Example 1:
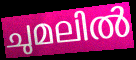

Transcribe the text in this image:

ചുമലിൽ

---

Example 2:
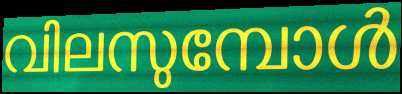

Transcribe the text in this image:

വിലസുമ്പോൾ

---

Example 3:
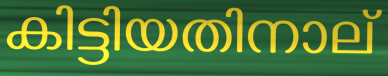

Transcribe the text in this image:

കിട്ടിയതിനാല്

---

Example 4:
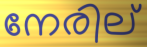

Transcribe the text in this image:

നേരില്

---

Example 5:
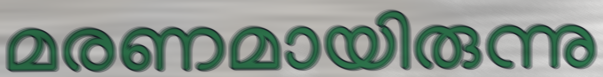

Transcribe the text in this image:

മരണമായിരുന്നു